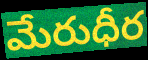
మేరుధీర